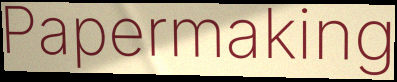
Papermaking